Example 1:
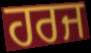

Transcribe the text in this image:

ਹਰਜ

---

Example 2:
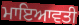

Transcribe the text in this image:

ਮਾਇਆਵਤੀ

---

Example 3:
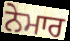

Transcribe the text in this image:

ਨੇਮਾਰ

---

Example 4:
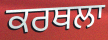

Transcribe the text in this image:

ਕਰਥਲਾ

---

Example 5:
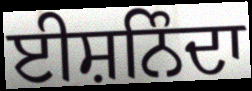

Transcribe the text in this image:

ਈਸ਼ਨਿੰਦਾ